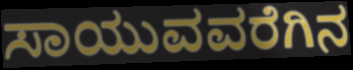
ಸಾಯುವವರೆಗಿನ